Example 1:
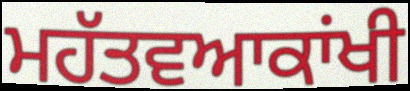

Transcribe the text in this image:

ਮਹੱਤਵਆਕਾਂਖੀ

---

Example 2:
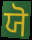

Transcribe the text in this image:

ਯੋ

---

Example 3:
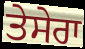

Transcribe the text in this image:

ਤੇਸੇਰਾ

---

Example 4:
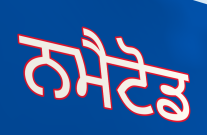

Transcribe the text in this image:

ਨਮੈਟੋਡ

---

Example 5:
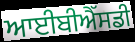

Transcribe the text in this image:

ਆਈਬੀਐੱਸਡੀ